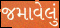
જમાવેલું